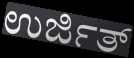
ಉರ್ಜಿತ್